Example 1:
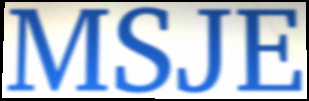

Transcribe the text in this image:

MSJE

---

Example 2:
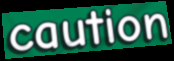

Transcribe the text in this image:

caution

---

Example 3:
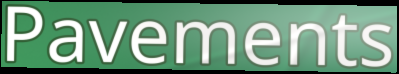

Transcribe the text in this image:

Pavements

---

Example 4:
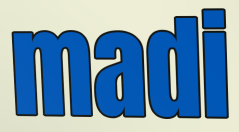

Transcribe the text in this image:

madi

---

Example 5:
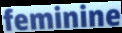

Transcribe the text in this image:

feminine